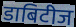
डाबिटीज